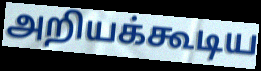
அறியக்கூடிய